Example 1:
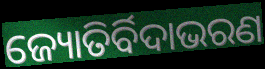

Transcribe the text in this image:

ଜ୍ୟୋତିର୍ବିଦାଭରଣ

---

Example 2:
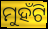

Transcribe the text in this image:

ମୁହଁଟି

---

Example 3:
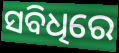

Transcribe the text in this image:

ସବିଧିରେ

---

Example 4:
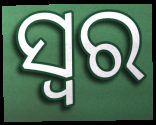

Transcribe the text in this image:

ସ୍ବର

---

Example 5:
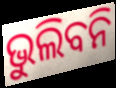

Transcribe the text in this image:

ଭୁଲିବନି